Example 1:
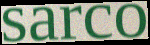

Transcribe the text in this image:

sarco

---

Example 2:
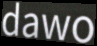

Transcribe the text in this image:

dawo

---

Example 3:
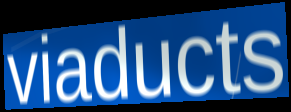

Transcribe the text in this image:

viaducts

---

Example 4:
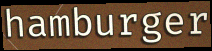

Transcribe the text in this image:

hamburger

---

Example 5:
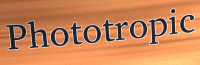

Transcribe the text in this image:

Phototropic